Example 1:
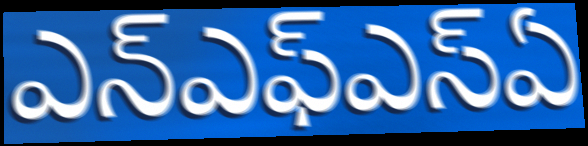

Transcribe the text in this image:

ఎన్ఎఫ్ఎస్ఏ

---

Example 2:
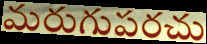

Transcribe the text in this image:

మరుగుపరచు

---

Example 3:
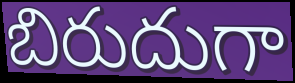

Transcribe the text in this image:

బిరుదుగా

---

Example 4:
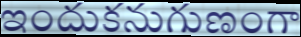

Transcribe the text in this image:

ఇందుకనుగుణంగా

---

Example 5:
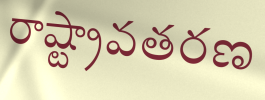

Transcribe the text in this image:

రాష్ట్రావతరణ